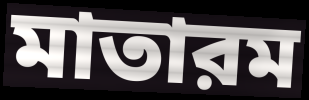
মাতারম